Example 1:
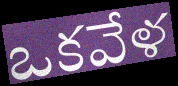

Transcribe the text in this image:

ఒకవేళ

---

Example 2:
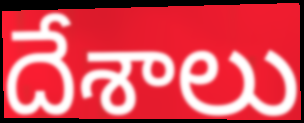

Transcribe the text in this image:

దేశాలు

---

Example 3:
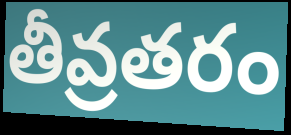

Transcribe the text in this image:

తీవ్రతరం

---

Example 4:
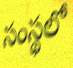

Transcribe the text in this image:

సంస్థలో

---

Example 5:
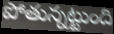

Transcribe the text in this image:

పోతున్నట్టుంది